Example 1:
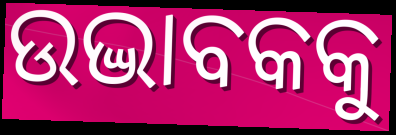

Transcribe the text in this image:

ଉଦ୍ଭାବକକୁ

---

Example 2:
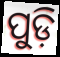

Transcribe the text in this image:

ପୁଡ଼ି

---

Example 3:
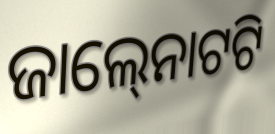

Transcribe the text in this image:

ଜାଲ୍‍ନୋଟଟି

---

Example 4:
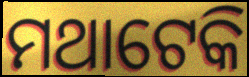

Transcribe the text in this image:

ମଥାଟେକି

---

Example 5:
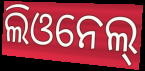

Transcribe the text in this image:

ଲିଓନେଲ୍